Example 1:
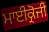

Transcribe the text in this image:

ਮਾਈਕ੍ਰੋਜੀ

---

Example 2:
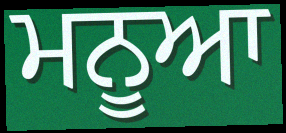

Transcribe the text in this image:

ਮਨੂਆ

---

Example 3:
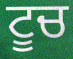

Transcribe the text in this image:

ਟੂਚ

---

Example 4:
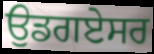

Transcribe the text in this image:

ਉਡਗਏਸਰ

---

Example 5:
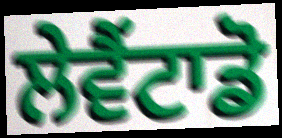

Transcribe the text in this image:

ਲੇਵੈਂਟਾਡੋ